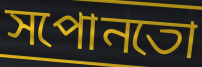
সপোনতো